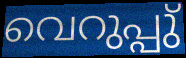
വെറുപ്പു്